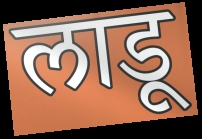
लाडू